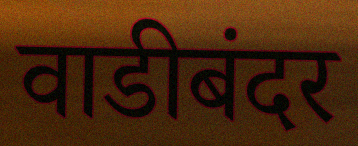
वाडीबंदर